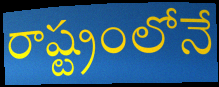
రాష్ట్రంలోనే